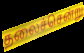
தலைச்சென்று